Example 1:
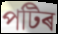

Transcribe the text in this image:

পটিৰ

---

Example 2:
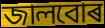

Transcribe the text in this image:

জালবোৰ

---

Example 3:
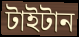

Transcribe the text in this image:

টাইটান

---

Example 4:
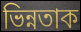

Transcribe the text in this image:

ভিন্নতাক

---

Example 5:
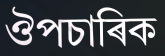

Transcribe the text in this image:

ঔপচাৰিক